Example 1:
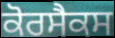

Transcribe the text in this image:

ਕੋਰਸੈਕਸ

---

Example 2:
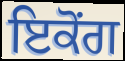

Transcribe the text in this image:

ਇਕੋਂਗ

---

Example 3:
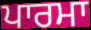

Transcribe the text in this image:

ਪਾਰਮਾ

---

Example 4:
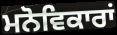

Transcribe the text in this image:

ਮਨੋਵਿਕਾਰਾਂ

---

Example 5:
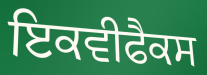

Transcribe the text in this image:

ਇਕਵੀਫੈਕਸ